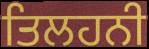
ਤਿਲਹਨੀ